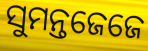
ସୁମନ୍ତଜେଜେ